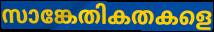
സാങ്കേതികതകളെ